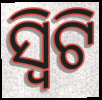
ସ୍ୱିଟି